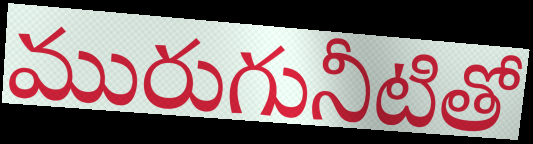
మురుగునీటితో